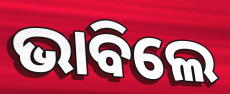
ଭାବିଲେ